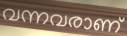
വന്നവരാണ്